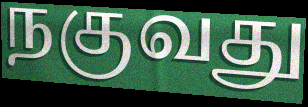
நகுவது